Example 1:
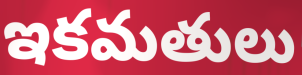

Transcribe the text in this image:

ఇకమతులు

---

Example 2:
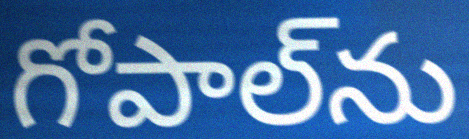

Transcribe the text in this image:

గోపాల్‌ను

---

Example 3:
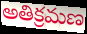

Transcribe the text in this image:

అతిక్రమణ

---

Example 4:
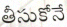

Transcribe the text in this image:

తీసుకోనే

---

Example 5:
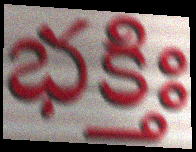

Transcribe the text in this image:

భక్తిః